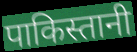
पाकिस्तानी